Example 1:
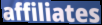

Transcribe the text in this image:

affiliates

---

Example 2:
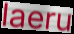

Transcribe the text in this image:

laeru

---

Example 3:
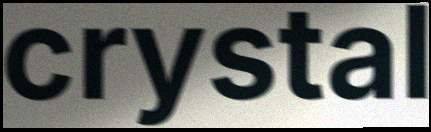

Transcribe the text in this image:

crystal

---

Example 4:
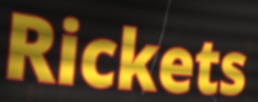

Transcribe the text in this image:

Rickets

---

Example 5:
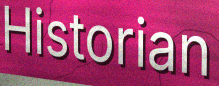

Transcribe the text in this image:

Historian